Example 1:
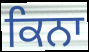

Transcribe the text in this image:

ਕਿਨਾ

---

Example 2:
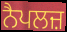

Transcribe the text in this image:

ਨੈਪਲਜ਼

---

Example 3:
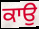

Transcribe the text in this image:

ਕਾਉ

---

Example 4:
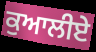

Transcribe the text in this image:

ਕੁਆਲੀਏ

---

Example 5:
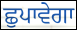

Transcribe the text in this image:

ਛੁਪਾਵੇਗਾ